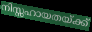
നിസ്സഹായതയ്ക്ക്